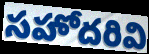
సహోదరివి